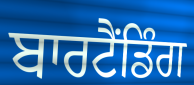
ਬਾਰਟੈਂਡਿੰਗ